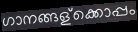
ഗാനങ്ങള്ക്കൊപ്പം